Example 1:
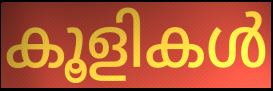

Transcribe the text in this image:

കൂളികൾ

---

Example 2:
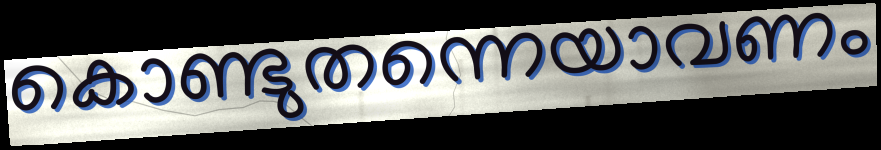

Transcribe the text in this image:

കൊണ്ടുതന്നെയാവണം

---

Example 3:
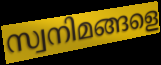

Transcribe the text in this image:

സ്വനിമങ്ങളെ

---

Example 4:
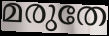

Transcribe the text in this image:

മരുതേ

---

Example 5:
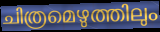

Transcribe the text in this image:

ചിത്രമെഴുത്തിലും